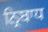
ਨ੍ਰਿਬਾਧ